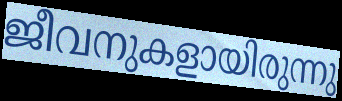
ജീവനുകളായിരുന്നു